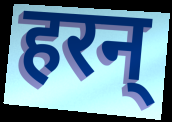
हरन्